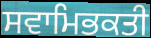
ਸਵਾਮਿਭਕਤੀ